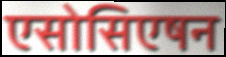
एसोसिएषन